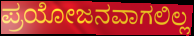
ಪ್ರಯೋಜನವಾಗಲಿಲ್ಲ